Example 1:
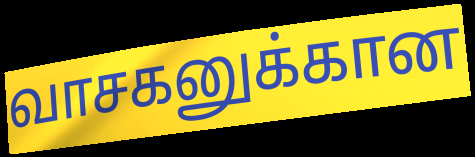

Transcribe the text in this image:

வாசகனுக்கான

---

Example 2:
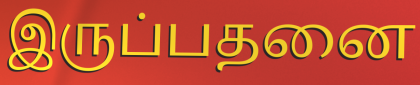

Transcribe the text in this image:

இருப்பதனை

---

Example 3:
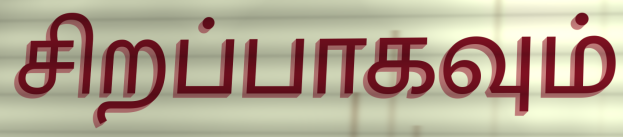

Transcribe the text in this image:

சிறப்பாகவும்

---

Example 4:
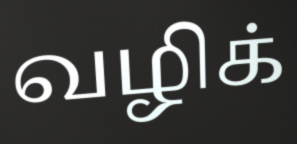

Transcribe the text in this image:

வழிக்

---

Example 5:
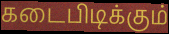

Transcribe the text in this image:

கடைபிடிக்கும்